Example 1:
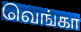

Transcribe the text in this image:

வெங்கா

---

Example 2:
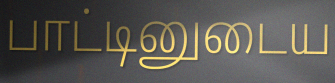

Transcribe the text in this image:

பாட்டினுடைய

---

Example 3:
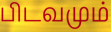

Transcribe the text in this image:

பிடவமும்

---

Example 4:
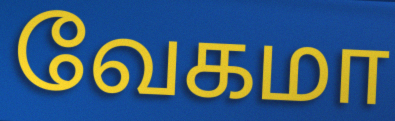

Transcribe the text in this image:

வேகமா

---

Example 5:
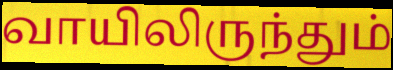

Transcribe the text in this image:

வாயிலிருந்தும்